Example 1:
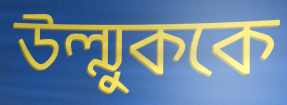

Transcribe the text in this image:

উল্মুককে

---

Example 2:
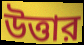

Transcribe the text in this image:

উত্তার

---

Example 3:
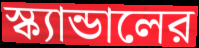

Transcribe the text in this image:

স্ক্যান্ডালের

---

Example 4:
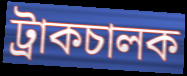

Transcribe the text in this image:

ট্রাকচালক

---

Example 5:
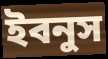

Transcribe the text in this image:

ইবনুস